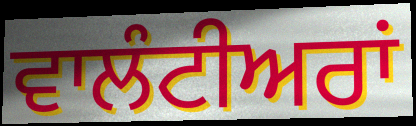
ਵਾਲੰਟੀਅਰਾਂ